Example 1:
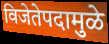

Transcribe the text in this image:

विजेतेपदामुळे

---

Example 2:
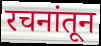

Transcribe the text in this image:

रचनांतून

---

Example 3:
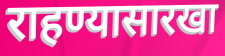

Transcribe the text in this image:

राहण्यासारखा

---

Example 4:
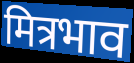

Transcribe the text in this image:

मित्रभाव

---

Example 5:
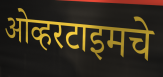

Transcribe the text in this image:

ओव्हरटाइमचे